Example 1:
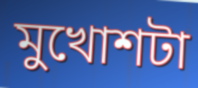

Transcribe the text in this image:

মুখোশটা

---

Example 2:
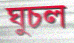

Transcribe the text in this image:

ঘুচল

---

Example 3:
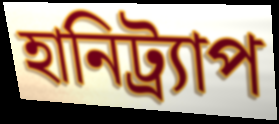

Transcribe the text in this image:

হানিট্র্যাপ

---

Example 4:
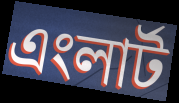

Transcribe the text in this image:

এংলার্ট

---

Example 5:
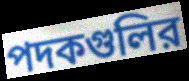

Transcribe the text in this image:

পদকগুলির